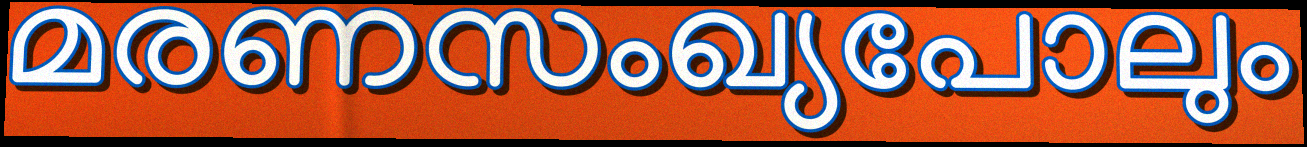
മരണസംഖ്യപോലും